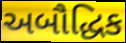
અબૌદ્ધિક